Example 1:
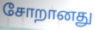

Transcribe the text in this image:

சோறானது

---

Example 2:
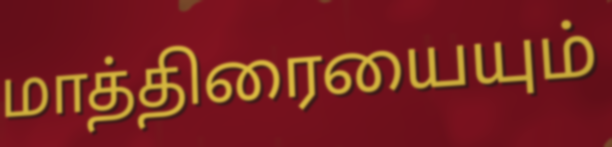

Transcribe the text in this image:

மாத்திரையையும்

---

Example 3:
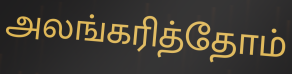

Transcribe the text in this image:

அலங்கரித்தோம்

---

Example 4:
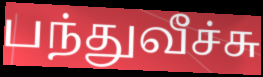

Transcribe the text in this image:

பந்துவீச்சு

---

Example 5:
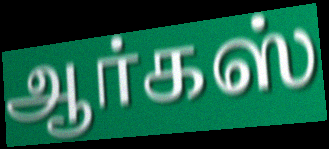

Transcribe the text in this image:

ஆர்கஸ்